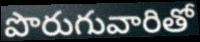
పొరుగువారితో